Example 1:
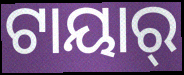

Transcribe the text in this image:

ଟାୟାର୍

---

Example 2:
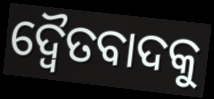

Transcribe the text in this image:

ଦ୍ୱୈତବାଦକୁ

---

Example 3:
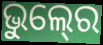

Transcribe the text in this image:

ଭୁଲ୍‍ରେ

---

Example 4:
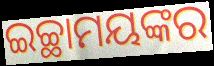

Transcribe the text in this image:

ଇଚ୍ଛାମୟଙ୍କର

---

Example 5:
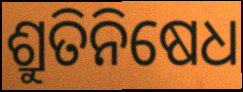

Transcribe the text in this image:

ଶ୍ରୁତିନିଷେଧ